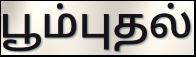
பூம்புதல்